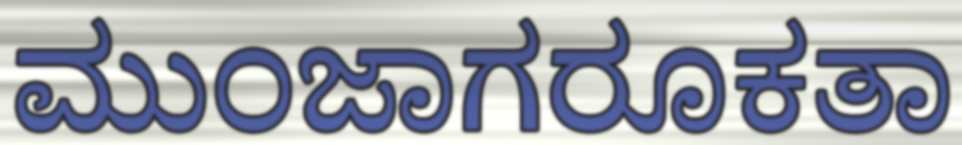
ಮುಂಜಾಗರೂಕತಾ